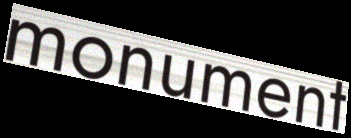
monument